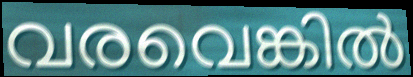
വരവെങ്കിൽ